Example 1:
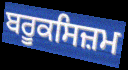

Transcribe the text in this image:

ਬਰੂਕਸਿਜ਼ਮ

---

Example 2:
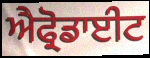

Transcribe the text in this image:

ਐਫ੍ਰੋਡਾਈਟ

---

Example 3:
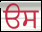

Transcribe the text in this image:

ੳਸ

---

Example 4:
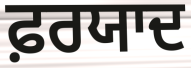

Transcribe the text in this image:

ਫ਼ਰਯਾਦ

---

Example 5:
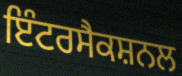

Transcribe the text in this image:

ਇੰਟਰਸੈਕਸ਼ਨਲ